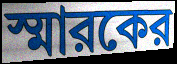
স্মারকের